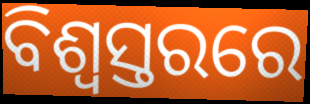
ବିଶ୍ୱସ୍ତରରେ